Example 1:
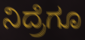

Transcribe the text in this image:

ನಿದ್ರೆಗೂ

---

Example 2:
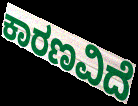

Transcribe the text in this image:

ಕಾರಣವಿದೆ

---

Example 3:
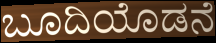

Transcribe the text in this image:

ಬೂದಿಯೊಡನೆ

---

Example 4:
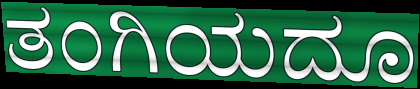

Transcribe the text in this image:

ತಂಗಿಯದೂ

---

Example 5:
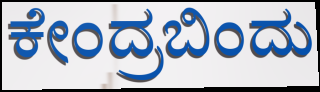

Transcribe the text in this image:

ಕೇಂದ್ರಬಿಂದು